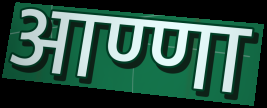
आण्णा